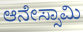
ಆನೇಸ್ಸಾಮಿ